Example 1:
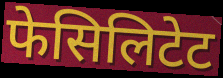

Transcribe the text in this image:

फेसिलिटेट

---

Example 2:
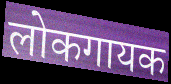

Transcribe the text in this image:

लोकगायक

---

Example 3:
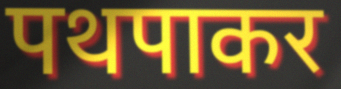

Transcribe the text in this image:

पथपाकर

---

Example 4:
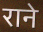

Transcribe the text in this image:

राने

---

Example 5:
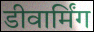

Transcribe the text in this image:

डीवार्मिंग